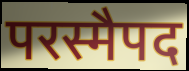
परस्मैपद